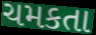
ચમકતા